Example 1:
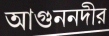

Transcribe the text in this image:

আগুননদীর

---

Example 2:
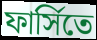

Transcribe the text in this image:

ফার্সিতে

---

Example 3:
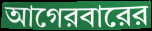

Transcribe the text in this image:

আগেরবারের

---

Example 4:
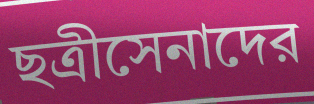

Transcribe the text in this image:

ছত্রীসেনাদের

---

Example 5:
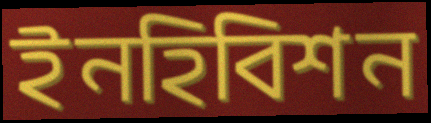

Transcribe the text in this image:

ইনহিবিশন